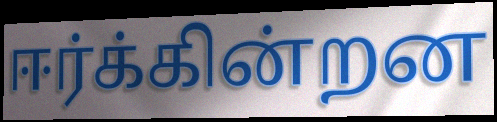
ஈர்க்கின்றன